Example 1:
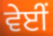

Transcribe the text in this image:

ਵੇਈਂ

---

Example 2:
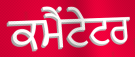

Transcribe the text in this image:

ਕਮੈਂਟੇਟਰ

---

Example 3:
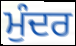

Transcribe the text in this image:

ਮੁੰਦਰ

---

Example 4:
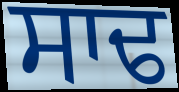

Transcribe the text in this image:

ਸਾਢ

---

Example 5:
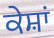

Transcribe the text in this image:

ਕੇਸ਼ਾਂ